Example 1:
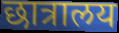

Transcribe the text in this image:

छात्रालय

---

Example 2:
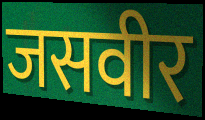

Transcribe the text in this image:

जसवीर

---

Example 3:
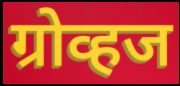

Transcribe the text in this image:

ग्रोव्हज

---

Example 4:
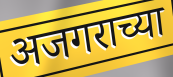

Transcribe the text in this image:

अजगराच्या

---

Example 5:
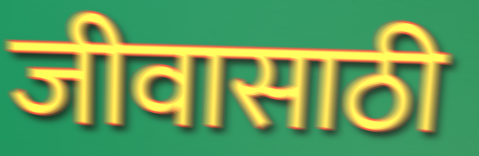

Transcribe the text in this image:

जीवासाठी